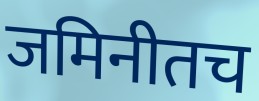
जमिनीतच